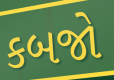
કબજો